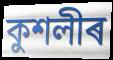
কুশলীৰ